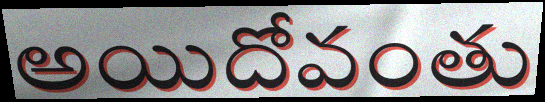
అయిదోవంతు